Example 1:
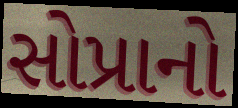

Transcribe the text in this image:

સોપ્રાનો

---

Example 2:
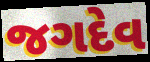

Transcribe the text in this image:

જગદેવ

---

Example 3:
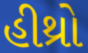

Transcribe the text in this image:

હીથ્રો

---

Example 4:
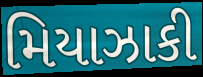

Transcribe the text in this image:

મિયાઝાકી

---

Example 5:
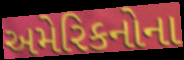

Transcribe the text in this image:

અમેરિકનોના